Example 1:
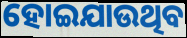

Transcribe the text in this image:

ହୋଇଯାଉଥିବ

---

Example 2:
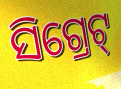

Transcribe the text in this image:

ସିଗ୍ରେଟ୍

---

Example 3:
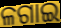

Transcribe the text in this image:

ଳଗାଇ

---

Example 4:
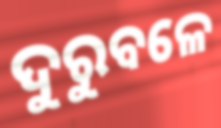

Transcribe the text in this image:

ଦୁରୁବଳେ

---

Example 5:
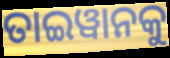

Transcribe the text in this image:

ତାଇୱାନକୁ